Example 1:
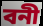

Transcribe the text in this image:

বনী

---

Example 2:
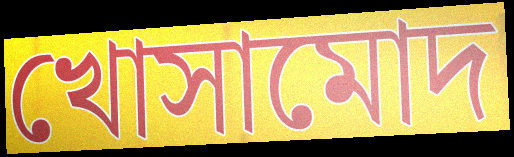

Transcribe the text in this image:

খোসামোদ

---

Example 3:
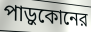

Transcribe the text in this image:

পাড়ুকোনের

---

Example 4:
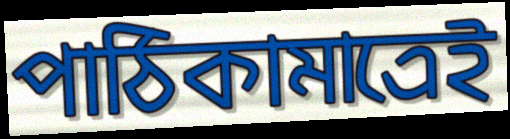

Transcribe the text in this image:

পাঠিকামাত্রেই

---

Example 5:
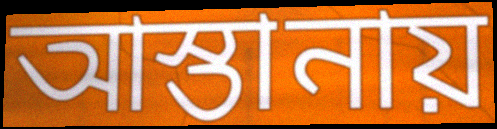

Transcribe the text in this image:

আস্তানায়